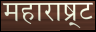
महाराष्र्ट